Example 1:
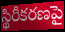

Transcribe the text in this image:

స్థిరీకరణపై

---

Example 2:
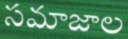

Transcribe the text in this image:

సమాజాల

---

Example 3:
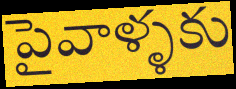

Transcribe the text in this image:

పైవాళ్ళకు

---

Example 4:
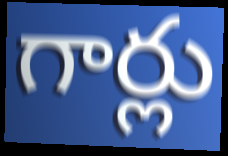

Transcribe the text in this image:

గార్లు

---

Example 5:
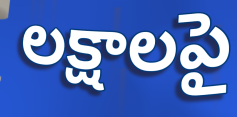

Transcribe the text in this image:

లక్షాలపై